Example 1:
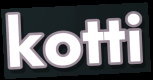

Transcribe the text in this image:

kotti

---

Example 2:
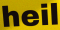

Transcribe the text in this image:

heil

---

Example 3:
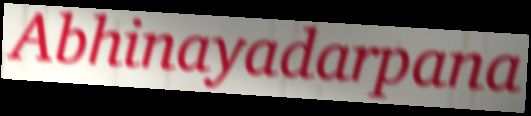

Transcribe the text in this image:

Abhinayadarpana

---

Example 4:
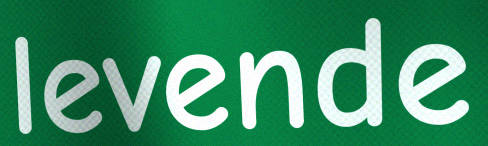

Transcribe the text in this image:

levende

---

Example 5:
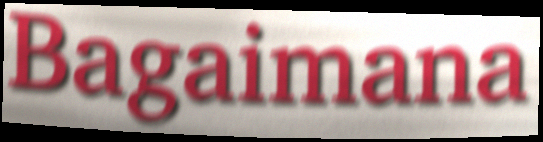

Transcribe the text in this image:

Bagaimana